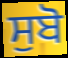
ਸੁਬੋ